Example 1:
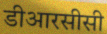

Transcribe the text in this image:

डीआरसीसी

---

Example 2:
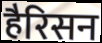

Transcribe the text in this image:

हैरिसन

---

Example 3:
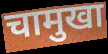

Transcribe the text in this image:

चामुखा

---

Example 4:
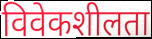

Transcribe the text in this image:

विवेकशीलता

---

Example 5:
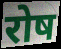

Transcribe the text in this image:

रोष